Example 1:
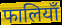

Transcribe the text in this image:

फालियाँ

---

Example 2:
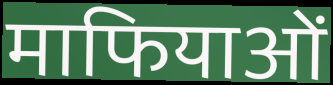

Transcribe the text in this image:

माफियाओं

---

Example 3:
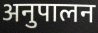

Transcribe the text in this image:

अनुपालन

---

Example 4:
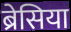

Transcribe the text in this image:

ब्रेसिया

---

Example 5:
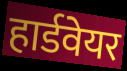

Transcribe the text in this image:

हार्डवेयर